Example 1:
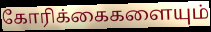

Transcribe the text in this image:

கோரிக்கைகளையும்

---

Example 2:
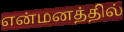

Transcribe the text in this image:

என்மனத்தில்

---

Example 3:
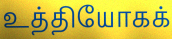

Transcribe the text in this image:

உத்தியோகக்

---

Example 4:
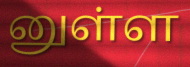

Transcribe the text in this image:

னுள்ள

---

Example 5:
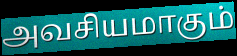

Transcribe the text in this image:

அவசியமாகும்